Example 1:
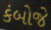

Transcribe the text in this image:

કંબોજે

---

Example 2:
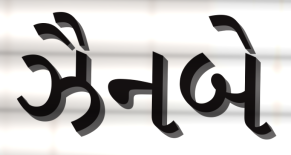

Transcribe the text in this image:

ઝૈનબે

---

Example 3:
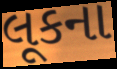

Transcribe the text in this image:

લૂકના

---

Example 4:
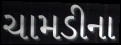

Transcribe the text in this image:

ચામડીના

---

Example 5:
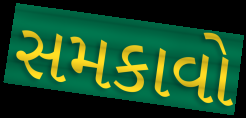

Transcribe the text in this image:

સમકાવો